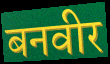
बनवीर